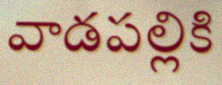
వాడపల్లికి